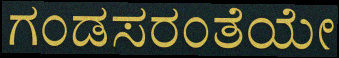
ಗಂಡಸರಂತೆಯೇ